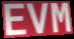
EVM